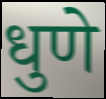
धुणे